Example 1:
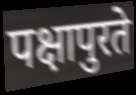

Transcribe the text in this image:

पक्षापुरते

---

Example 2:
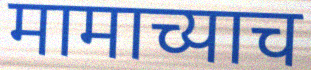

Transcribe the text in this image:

मामाच्याच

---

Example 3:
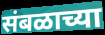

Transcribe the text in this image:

संबळाच्या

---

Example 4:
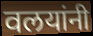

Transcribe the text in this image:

वलयांनी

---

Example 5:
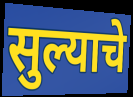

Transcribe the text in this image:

सुल्याचे